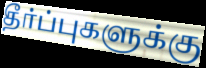
தீர்ப்புகளுக்கு